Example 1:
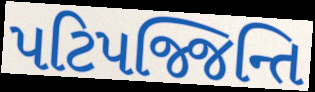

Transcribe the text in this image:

પટિપજ્જિન્તિ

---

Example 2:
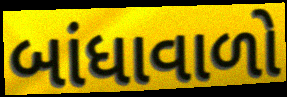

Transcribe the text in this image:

બાંધાવાળો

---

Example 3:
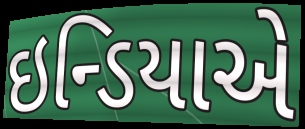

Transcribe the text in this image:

ઇન્ડિયાએ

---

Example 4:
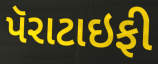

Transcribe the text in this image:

પૅરાટાઇફી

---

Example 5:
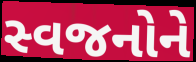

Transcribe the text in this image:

સ્વજનોને